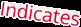
Indicates